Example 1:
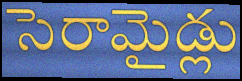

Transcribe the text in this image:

సెరామైడ్లు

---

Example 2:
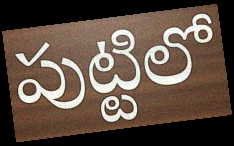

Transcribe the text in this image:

పుట్టిలో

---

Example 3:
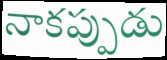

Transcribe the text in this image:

నాకప్పుడు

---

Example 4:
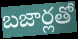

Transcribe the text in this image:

బజార్లతో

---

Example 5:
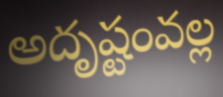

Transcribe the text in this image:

అదృష్టంవల్ల